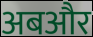
अबऔर